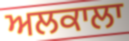
ਅਲਕਾਲਾ